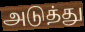
அடுத்து